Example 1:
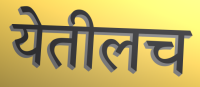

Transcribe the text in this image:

येतीलच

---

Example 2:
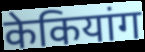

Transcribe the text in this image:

केकियांग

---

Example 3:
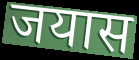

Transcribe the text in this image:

जयास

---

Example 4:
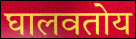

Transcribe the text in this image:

घालवतोय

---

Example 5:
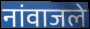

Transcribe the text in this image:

नांवाजले